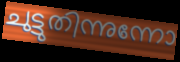
ചുട്ടുതിന്നുന്നോ